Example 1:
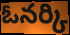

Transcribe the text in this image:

ఓనర్కి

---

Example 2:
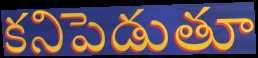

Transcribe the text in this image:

కనిపెడుతూ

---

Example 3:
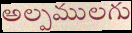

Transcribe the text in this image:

అల్పములగు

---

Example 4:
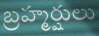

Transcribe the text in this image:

బ్రహ్మర్షులు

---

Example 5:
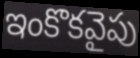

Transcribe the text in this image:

ఇంకొకవైపు